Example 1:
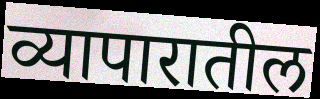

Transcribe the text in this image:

व्यापारातील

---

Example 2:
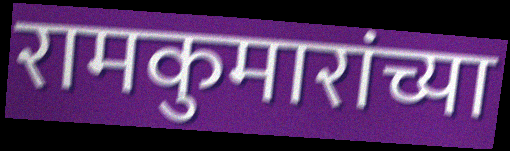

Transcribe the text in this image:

रामकुमारांच्या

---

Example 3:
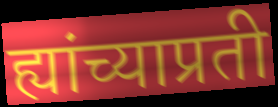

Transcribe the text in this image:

ह्यांच्याप्रती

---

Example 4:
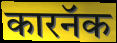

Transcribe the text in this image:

कारनॅक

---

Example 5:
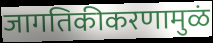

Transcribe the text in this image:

जागतिकीकरणामुळं